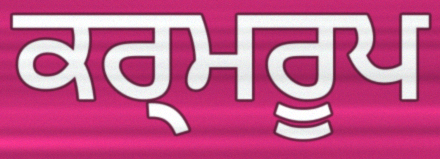
ਕਰ੍ਮਰੂਪ